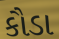
કૌડા